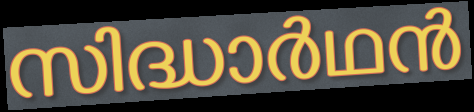
സിദ്ധാർഥൻ